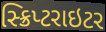
સ્ક્રિપ્ટરાઇટર